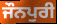
ਜੌਨਪੁਰੀ